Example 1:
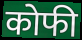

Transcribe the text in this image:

कोफी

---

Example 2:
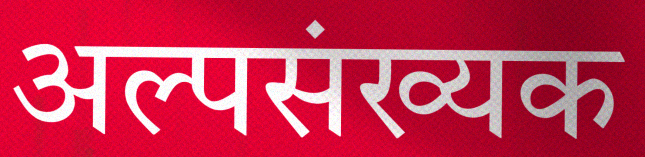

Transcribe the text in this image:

अल्‍पसंख्‍यक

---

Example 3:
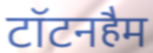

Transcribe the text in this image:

टॉटनहैम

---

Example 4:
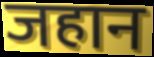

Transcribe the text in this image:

जहान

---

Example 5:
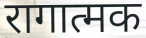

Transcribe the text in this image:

रागात्मक